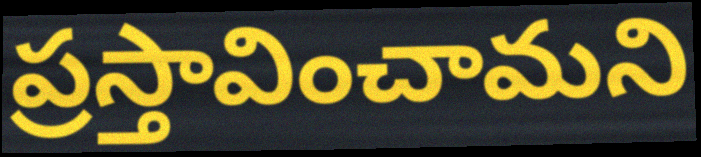
ప్రస్తావించామని